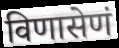
विणासेणं